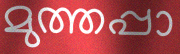
മുത്തപ്പാ